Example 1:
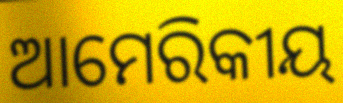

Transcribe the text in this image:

ଆମେରିକୀୟ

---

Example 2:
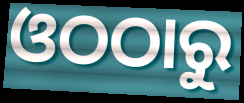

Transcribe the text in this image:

ଓଠଠାରୁ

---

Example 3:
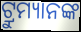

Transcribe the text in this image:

ଟ୍ରୁମ୍ୟାନଙ୍କ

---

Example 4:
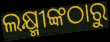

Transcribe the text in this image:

ଲକ୍ଷ୍ମୀଙ୍କଠାରୁ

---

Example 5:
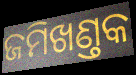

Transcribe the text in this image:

ଜମିଖଣ୍ତକ